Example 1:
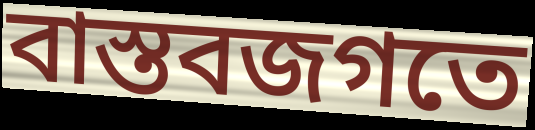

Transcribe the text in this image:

বাস্তবজগতে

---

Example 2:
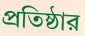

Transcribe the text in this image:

প্রতিষ্ঠার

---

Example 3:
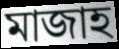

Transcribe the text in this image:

মাজাহ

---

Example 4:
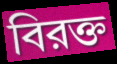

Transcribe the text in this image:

বিরক্ত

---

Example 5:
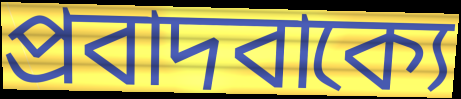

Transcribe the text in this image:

প্রবাদবাক্যে